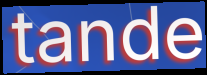
tande